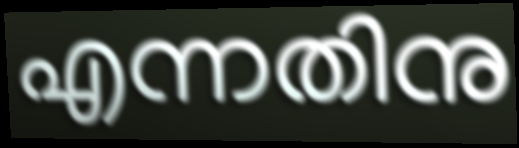
എന്നതിനു